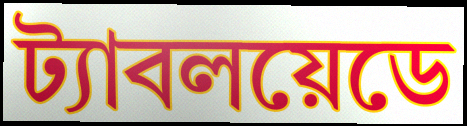
ট্যাবলয়েডে